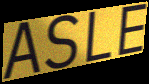
ASLE